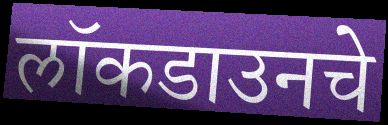
लॉकडाउनचे